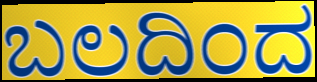
ಬಲದಿಂದ